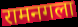
रामनगला